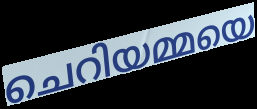
ചെറിയമ്മയെ